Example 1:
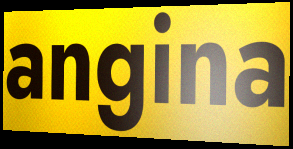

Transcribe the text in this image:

angina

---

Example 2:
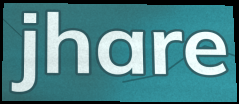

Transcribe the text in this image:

jhare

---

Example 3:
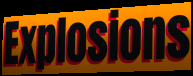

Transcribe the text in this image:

Explosions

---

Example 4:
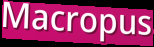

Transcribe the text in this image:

Macropus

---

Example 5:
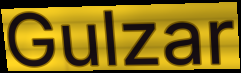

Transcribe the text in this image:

Gulzar